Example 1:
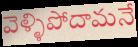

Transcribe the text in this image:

వెళ్ళిపోదామనే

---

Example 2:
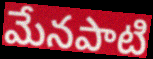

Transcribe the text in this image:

మేనపాటి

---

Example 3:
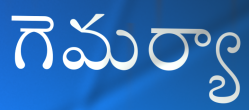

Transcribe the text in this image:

గెమర్యా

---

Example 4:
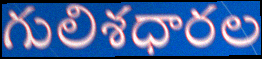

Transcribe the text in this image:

గులిశధారల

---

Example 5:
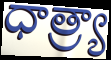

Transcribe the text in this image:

ధాత్ర్యా